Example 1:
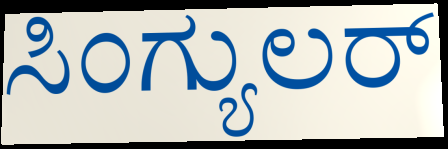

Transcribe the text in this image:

ಸಿಂಗ್ಯುಲರ್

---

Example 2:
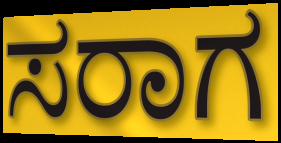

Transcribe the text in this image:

ಸರಾಗ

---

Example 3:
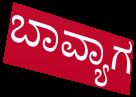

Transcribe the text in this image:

ಬಾವ್ಯಾಗ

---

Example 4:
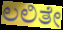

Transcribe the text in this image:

ಲಲಿತೇ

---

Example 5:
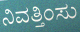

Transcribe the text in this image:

ನಿವತ್ತಿಂಸು